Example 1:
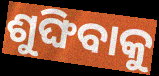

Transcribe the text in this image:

ଶୁଙ୍ଘିବାକୁ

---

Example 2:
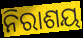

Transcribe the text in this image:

ନିରାଶୟ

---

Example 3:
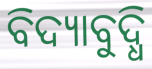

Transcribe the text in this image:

ବିଦ୍ୟାବୁଦ୍ଧି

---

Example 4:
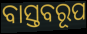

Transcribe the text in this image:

ବାସ୍ତବରୂପ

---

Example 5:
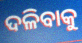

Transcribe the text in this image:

ଦଳିବାକୁ